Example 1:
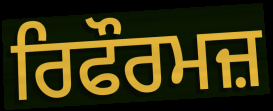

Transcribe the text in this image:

ਰਿਫੌਰਮਜ਼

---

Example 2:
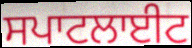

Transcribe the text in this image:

ਸਪਾਟਲਾਈਟ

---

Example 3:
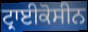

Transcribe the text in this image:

ਟ੍ਰਾਈਕੋਸੀਨ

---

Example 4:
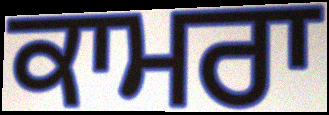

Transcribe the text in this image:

ਕਾਮਰਾ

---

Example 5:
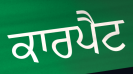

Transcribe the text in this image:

ਕਾਰਪੈਟ